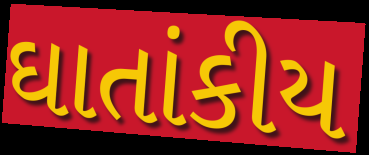
ઘાતાંકીય